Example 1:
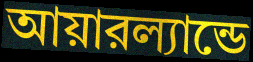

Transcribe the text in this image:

আয়ারল্যান্ডে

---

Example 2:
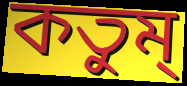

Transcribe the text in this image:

কতুম্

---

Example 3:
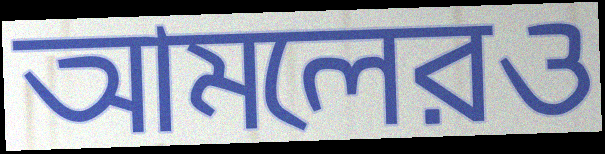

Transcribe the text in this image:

আমলেরও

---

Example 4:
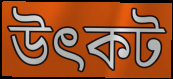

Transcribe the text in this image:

উৎকট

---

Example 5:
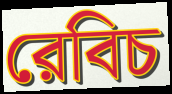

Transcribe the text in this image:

রেবিচ